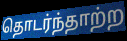
தொடர்ந்தாற்ற